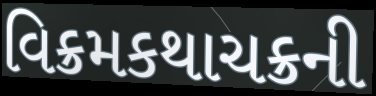
વિક્રમકથાચક્રની